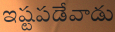
ఇష్టపడేవాడు